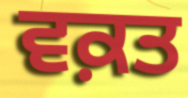
ਵਕ਼ਤ